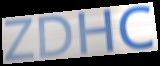
ZDHC